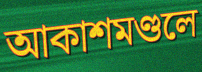
আকাশমণ্ডলে